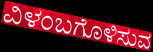
ವಿಳಂಬಗೊಳಿಸುವ